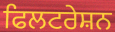
ਫਿਲਟਰੇਸ਼ਨ